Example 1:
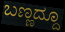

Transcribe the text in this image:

ಬಣ್ಣದ್ದೂ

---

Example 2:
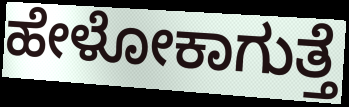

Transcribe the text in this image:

ಹೇಳೋಕಾಗುತ್ತೆ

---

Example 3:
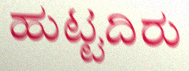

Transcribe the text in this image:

ಹುಟ್ಟದಿರು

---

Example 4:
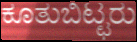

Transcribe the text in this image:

ಕೂತುಬಿಟ್ಟರು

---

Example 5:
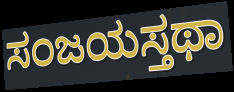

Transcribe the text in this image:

ಸಂಜಯಸ್ತಥಾ